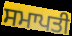
ਸਮਾਪਤੀ